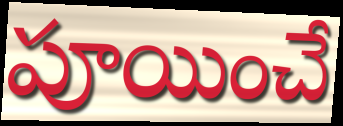
పూయించే